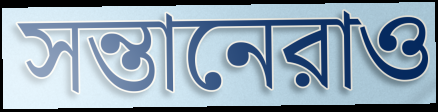
সন্তানেরাও